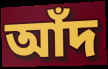
আঁদ